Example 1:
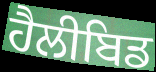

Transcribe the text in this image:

ਹੈਲੀਬਿਡ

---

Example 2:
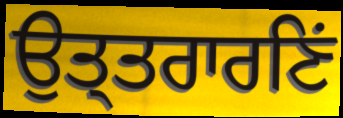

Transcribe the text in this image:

ਉਤ੍ਤਰਾਰਣਿਂ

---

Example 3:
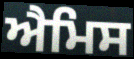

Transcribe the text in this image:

ਐਮਿਸ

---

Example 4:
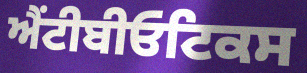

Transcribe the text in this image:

ਐਂਟੀਬੀਓਟਿਕਸ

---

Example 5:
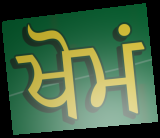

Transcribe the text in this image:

ਖੋਮਂ